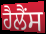
ਹੈਲੈਂਸ